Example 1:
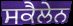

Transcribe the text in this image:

ਸਕੈਲੇਨ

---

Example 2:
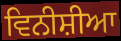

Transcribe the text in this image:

ਵਿਨੀਸ਼ੀਆ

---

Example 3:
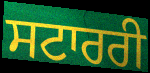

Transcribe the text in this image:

ਸਟਾਰਰੀ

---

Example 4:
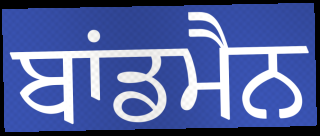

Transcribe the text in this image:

ਬਾਂਡਮੈਨ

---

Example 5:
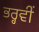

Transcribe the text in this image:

ਭਰ੍ਹਵੀਂ